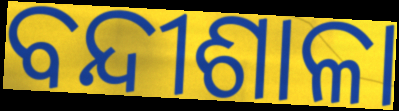
ବନ୍ଦୀଶାଳା